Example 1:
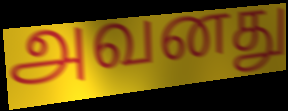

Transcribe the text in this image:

அவனது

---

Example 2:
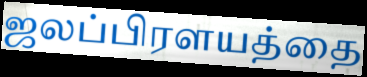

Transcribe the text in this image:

ஜலப்பிரளயத்தை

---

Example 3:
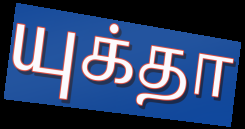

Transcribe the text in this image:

யுக்தா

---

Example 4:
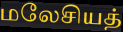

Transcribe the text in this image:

மலேசியத்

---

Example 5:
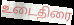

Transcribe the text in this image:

உடைதிரை